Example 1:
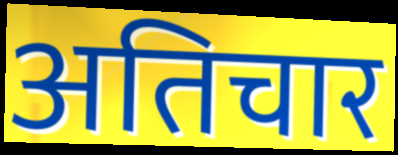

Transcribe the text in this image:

अतिचार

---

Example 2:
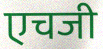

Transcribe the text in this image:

एचजी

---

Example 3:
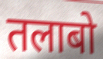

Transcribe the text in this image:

तलाबो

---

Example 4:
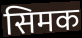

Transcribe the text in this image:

सिमक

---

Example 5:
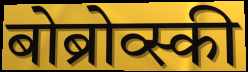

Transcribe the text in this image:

बोब्रोव्स्की